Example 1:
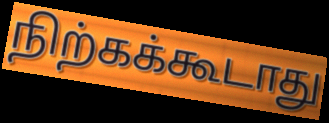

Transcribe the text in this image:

நிற்கக்கூடாது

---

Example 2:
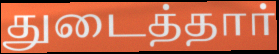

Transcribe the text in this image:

துடைத்தார்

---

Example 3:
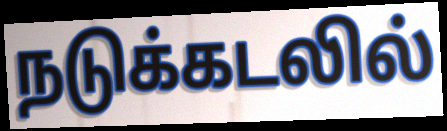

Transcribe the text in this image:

நடுக்கடலில்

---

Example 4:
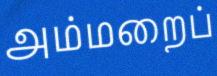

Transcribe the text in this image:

அம்மறைப்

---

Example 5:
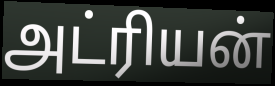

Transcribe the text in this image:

அட்ரியன்